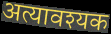
अत्यावश्यक